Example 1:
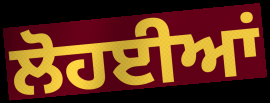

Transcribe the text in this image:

ਲੋਹਈਆਂ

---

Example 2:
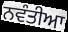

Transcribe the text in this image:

ਨਵੰਤੀਆ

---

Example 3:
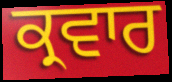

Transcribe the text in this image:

ਕ੍ਰਵਾਰ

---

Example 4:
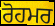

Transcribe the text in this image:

ਰੋਹਮਰ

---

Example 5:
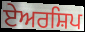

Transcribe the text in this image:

ਏਅਰਸ਼ਿਪ